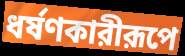
ধর্ষণকারীরূপে